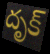
దృక్